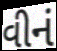
વીનં